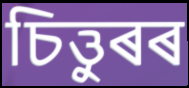
চিত্তুৰৰ